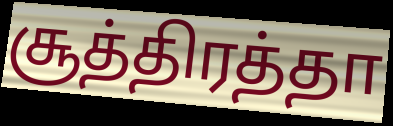
சூத்திரத்தா